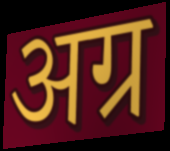
अग्र